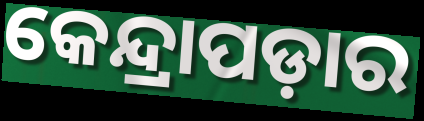
କେନ୍ଦ୍ରାପଡ଼ାର